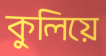
কুলিয়ে